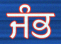
ਜੰਭ